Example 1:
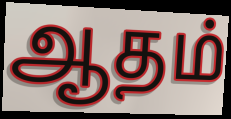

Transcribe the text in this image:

ஆதம்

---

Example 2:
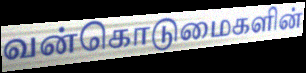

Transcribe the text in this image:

வன்கொடுமைகளின்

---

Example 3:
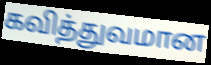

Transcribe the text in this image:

கவித்துவமான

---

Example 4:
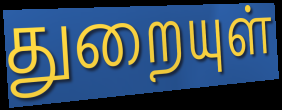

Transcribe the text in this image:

துறையுள்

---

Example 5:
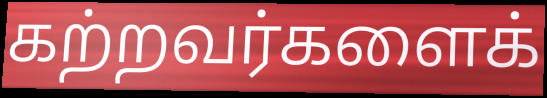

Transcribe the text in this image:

கற்றவர்களைக்